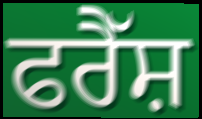
ਫਰੈੱਸ਼